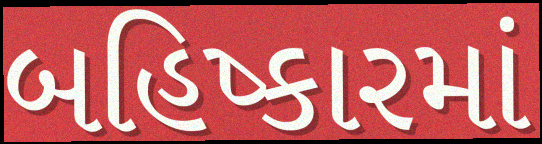
બહિષ્કારમાં